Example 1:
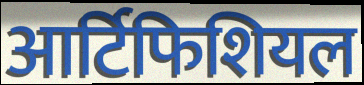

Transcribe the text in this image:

आर्टिफिशियल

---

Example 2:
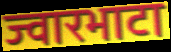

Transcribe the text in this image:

ज्वारभाटा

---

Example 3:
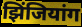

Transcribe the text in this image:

झिंजियांग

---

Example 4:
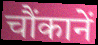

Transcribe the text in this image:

चौंकानें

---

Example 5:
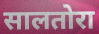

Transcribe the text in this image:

सालतोरा